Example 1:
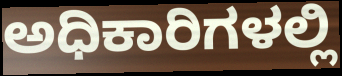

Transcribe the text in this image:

ಅಧಿಕಾರಿಗಳಲ್ಲಿ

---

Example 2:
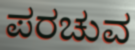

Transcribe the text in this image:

ಪರಚುವ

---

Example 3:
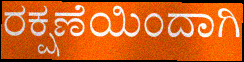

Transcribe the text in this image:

ರಕ್ಷಣೆಯಿಂದಾಗಿ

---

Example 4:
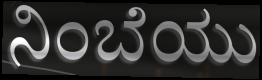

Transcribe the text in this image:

ನಿಂಬೆಯು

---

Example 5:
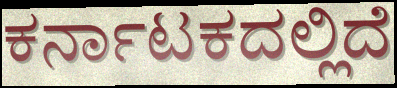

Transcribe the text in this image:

ಕರ್ನಾಟಕದಲ್ಲಿದೆ